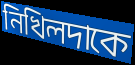
নিখিলদাকে